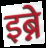
इब्ने